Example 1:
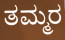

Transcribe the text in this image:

ತಮ್ಮರ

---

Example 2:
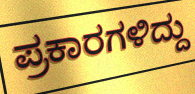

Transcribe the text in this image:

ಪ್ರಕಾರಗಳಿದ್ದು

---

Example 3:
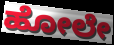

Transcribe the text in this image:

ಹೋಲೇ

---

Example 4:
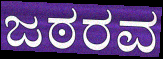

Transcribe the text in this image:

ಜಠರವ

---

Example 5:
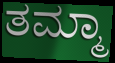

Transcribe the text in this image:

ತಮ್ಮಾ